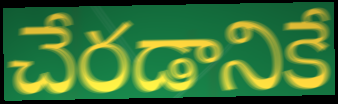
చేరడానికే